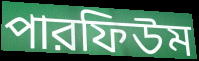
পারফিউম